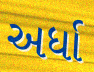
અર્ધા